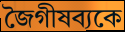
জৈগীষব্যকে